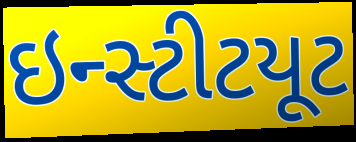
ઇન્સ્ટીટયૂટ